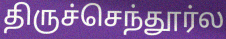
திருச்செந்தூர்ல